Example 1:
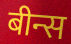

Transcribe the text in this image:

बीन्‍स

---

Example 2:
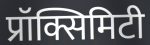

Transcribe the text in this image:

प्रॉक्सिमिटी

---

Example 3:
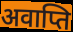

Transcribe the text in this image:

अवाप्ति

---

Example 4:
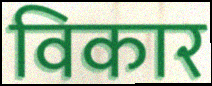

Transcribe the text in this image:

विकार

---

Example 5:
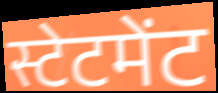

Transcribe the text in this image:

स्टेटमेंट